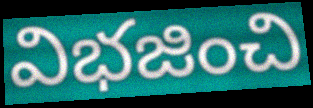
విభజించి